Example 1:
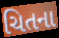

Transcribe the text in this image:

ચિતના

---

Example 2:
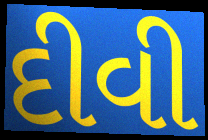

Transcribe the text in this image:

દીવી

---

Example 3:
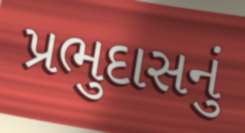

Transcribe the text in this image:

પ્રભુદાસનું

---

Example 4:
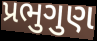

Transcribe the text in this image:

પ્રભુગુણ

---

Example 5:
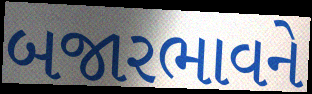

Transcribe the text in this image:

બજારભાવને